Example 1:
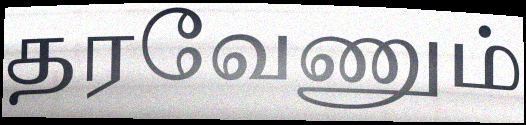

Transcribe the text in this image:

தரவேணும்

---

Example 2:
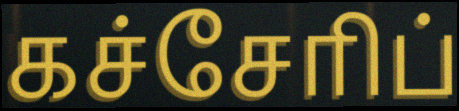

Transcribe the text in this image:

கச்சேரிப்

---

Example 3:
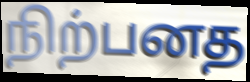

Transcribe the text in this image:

நிற்பனத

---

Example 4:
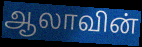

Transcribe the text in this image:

ஆலாவின்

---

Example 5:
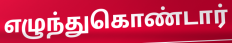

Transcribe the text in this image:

எழுந்துகொண்டார்